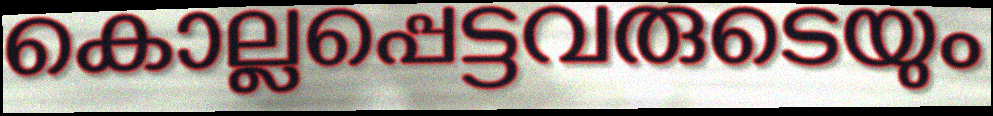
കൊല്ലപ്പെട്ടവരുടെയും